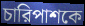
চারিপাশকে